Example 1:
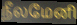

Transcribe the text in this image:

நீலமேனி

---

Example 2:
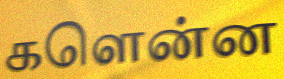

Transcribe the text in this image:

களென்ன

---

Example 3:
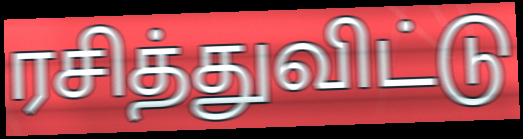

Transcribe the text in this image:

ரசித்துவிட்டு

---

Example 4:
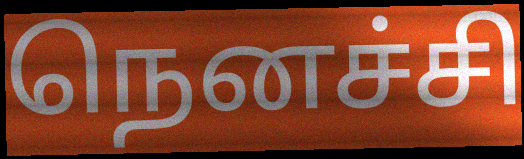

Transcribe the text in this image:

நெனச்சி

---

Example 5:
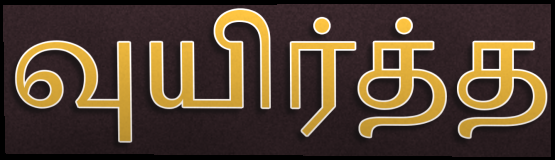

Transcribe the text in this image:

வுயிர்த்த